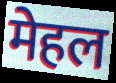
मेहल